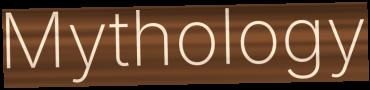
Mythology